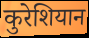
कुरेशियान